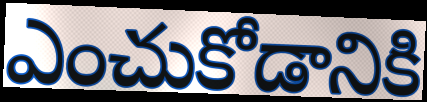
ఎంచుకోడానికి